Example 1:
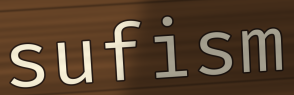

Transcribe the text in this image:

sufism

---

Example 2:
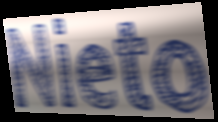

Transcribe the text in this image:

Nieto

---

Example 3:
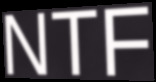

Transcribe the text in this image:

NTF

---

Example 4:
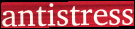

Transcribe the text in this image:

antistress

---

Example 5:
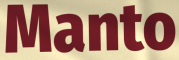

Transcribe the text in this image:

Manto